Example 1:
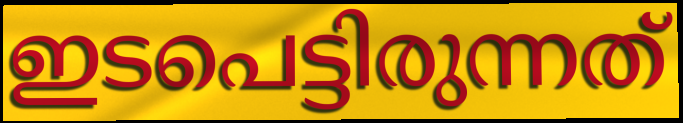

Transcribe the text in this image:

ഇടപെട്ടിരുന്നത്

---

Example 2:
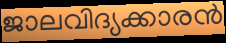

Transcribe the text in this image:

ജാലവിദ്യക്കാരൻ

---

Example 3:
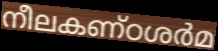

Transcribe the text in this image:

നീലകണ്ഠശർമ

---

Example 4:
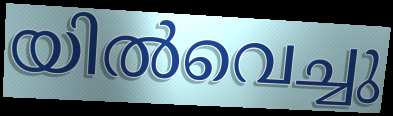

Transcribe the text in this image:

യിൽവെച്ചു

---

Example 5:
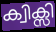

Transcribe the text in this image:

ക്വിക്സി